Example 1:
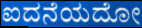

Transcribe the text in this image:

ಐದನೆಯದೋ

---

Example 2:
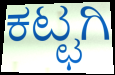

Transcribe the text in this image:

ಕಟ್ಟಗಿ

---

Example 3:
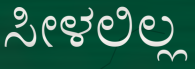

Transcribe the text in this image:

ಸೀಳಲಿಲ್ಲ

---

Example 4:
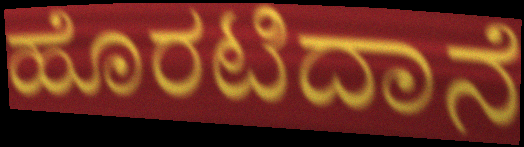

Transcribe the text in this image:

ಹೊರಟಿದಾನೆ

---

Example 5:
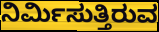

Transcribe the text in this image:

ನಿರ್ಮಿಸುತ್ತಿರುವ